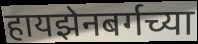
हायझेनबर्गच्या